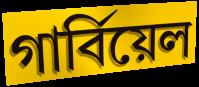
গার্বিয়েল